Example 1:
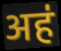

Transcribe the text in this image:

अह॑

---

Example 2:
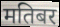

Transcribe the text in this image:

मतिबर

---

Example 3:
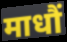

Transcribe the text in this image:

माधौं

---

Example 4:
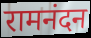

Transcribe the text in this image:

रामनंदन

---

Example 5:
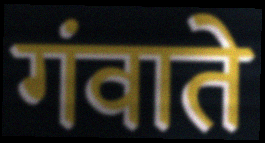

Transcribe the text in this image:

गंवाते